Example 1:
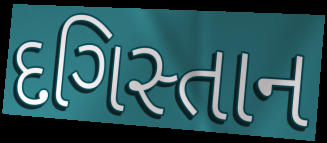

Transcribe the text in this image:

દગિસ્તાન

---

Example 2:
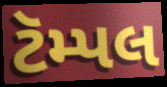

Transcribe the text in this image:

ટૅમ્પલ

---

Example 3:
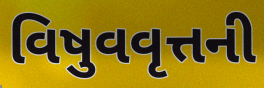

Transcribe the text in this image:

વિષુવવૃત્તની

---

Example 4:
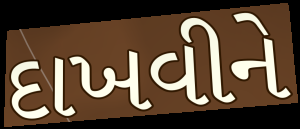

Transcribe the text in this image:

દાખવીને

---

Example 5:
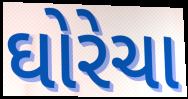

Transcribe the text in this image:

ઘોરેચા